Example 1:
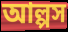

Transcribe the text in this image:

আল্পস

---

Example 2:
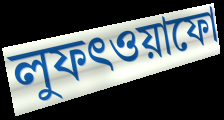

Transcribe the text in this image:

লুফৎওয়াফো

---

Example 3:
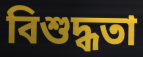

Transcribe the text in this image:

বিশুদ্ধতা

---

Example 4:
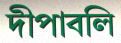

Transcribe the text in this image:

দীপাবলি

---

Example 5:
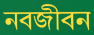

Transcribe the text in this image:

নবজীবন